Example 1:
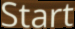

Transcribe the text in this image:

Start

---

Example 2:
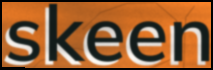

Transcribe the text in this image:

skeen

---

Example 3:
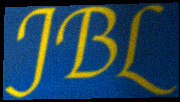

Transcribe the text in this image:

JBL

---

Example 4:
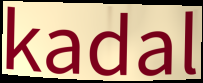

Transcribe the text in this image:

kadal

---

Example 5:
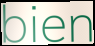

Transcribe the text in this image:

bien